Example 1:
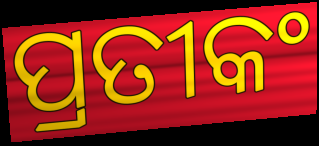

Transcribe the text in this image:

ପ୍ରତୀକଂ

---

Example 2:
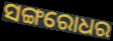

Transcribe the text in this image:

ସଙ୍ଗରୋଧର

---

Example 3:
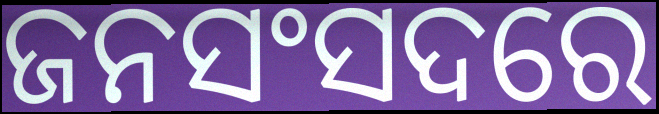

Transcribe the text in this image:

ଜନସଂସଦରେ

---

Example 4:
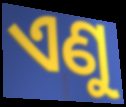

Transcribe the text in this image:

ଏଣୁ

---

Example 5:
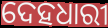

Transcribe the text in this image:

ଦେହଧାରୀ